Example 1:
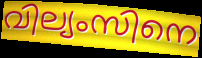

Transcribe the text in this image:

വില്യംസിനെ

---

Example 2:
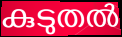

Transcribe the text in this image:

കുടുതൽ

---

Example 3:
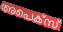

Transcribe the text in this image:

അപെക്സ്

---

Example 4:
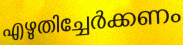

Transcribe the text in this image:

എഴുതിച്ചേർക്കണം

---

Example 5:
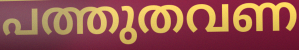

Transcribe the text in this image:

പത്തുതവണ